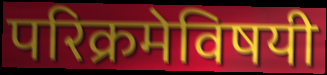
परिक्रमेविषयी